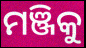
ମଞ୍ଜିକୁ